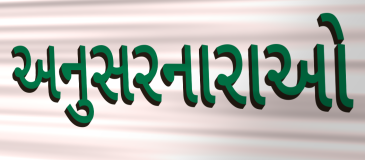
અનુસરનારાઓ